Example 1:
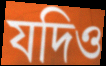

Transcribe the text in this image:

যদিও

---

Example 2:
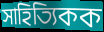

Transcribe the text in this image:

সাহিত্যিকক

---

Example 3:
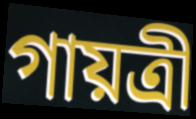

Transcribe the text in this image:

গায়ত্ৰী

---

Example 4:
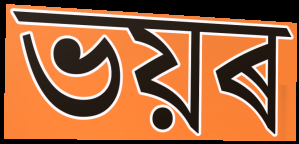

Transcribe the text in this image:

ভয়ৰ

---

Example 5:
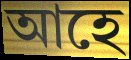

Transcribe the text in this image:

আহে